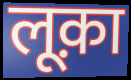
लूक़ा